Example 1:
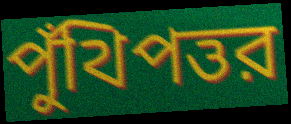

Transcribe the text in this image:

পুঁথিপত্তর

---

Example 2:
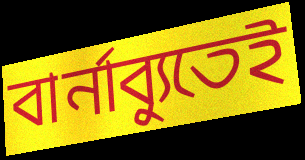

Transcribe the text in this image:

বার্নাব্যুতেই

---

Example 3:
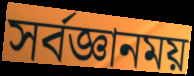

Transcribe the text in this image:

সর্বজ্ঞানময়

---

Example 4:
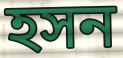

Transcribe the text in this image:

হসন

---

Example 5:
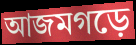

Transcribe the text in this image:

আজমগড়ে